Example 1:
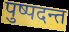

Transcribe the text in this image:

पुष्पदन्त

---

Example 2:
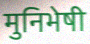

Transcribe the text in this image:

मुनिभेषी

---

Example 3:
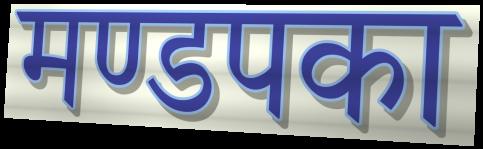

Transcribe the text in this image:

मण्डपका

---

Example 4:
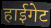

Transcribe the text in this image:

हाईगेट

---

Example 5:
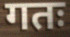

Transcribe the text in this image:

गतः